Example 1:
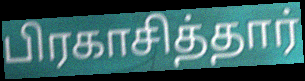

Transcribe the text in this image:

பிரகாசித்தார்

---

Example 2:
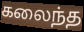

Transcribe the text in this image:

கலைந்த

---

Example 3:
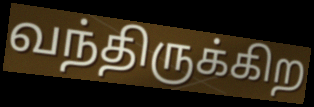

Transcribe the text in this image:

வந்திருக்கிற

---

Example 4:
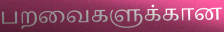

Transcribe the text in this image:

பறவைகளுக்கான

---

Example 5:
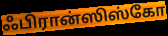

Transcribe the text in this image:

ஃபிரான்ஸிஸ்கோ